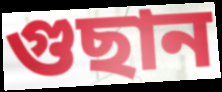
গুছান